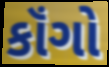
કૉંગો